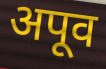
अपूव